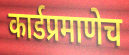
कार्डप्रमाणेच